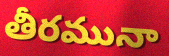
తీరమునా